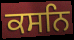
ਕਸਨਿ